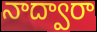
నాద్వారా